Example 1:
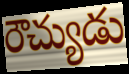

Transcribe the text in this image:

రౌచ్యుడు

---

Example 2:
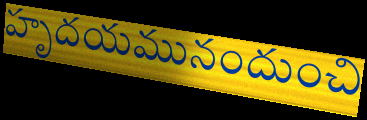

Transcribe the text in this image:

హృదయమునందుంచి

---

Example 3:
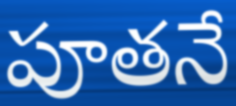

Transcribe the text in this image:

పూతనే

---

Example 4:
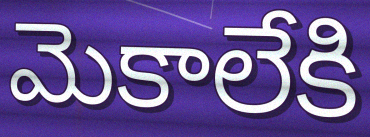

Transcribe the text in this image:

మెకాలేకి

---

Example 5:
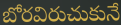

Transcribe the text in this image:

బోరవిరుచుకునే